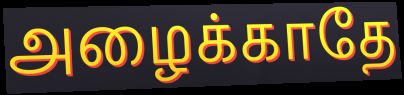
அழைக்காதே